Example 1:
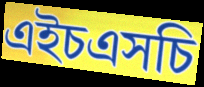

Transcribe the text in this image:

এইচএসচি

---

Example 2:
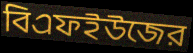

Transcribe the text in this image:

বিএফইউজের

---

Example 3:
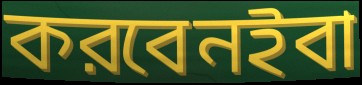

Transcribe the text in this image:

করবেনইবা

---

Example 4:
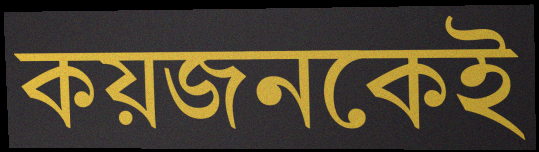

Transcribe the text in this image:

কয়জনকেই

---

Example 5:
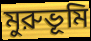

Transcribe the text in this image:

মুরুভূমি